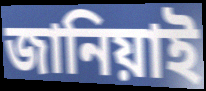
জানিয়াই